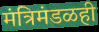
मंत्रिमंडळही